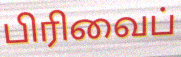
பிரிவைப்